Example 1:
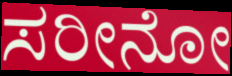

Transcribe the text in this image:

ಸರೀನೋ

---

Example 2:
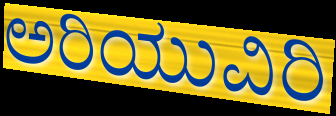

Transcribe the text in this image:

ಅರಿಯುವಿರಿ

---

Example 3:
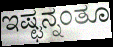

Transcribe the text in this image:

ಇಷ್ಟನ್ನಂತೂ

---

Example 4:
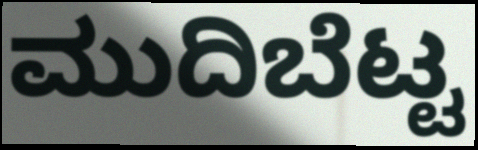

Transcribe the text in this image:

ಮುದಿಬೆಟ್ಟ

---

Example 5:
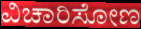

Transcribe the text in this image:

ವಿಚಾರಿಸೋಣ